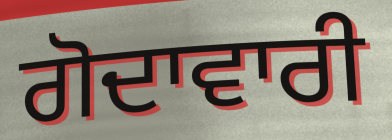
ਗੋਦਾਵਾਰੀ